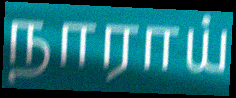
நாராய்